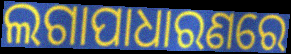
ଲଗାପାଧାରଣରେ